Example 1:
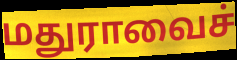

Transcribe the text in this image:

மதுராவைச்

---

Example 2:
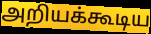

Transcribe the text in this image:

அறியக்கூடிய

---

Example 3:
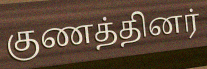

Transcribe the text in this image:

குணத்தினர்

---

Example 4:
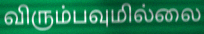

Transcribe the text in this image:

விரும்பவுமில்லை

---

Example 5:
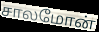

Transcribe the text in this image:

சாலமோன்